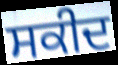
ਸਕੀਦ